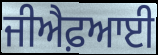
ਜੀਐਫ਼ਆਈ